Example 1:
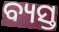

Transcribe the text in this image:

ବ୍ୟସ୍ତ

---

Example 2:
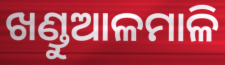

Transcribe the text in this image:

ଖଣ୍ଡୁଆଳମାଳି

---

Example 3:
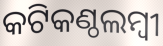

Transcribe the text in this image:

କଟିକଣ୍ଠଲମ୍ବୀ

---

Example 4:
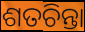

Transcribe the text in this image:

ଶତଚିନ୍ତା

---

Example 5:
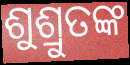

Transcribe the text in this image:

ଶୁଶ୍ରୁତଙ୍କ